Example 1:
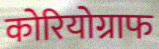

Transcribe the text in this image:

कोरियोग्राफ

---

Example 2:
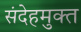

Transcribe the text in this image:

संदेहमुक्त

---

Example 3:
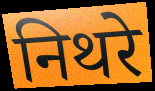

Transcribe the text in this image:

निथरे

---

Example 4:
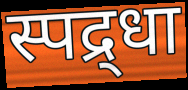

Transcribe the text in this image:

स्पद्र्धा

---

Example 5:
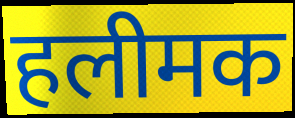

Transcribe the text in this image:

हलीमक